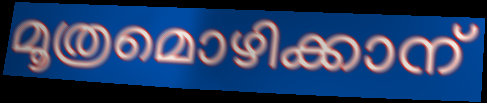
മൂത്രമൊഴിക്കാന്